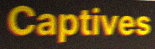
Captives